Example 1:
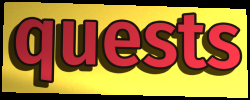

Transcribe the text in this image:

quests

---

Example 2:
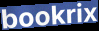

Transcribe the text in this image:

bookrix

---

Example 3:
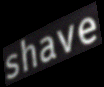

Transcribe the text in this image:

shave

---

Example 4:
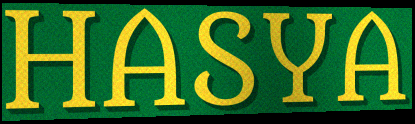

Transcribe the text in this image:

HASYA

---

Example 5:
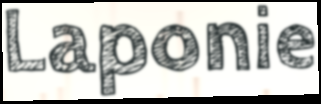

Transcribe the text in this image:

Laponie